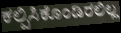
ಕಲ್ಪಿಸಿಕೊಂಡಿರಲಿಲ್ಲ